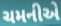
ચમનીએ